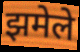
झमेले